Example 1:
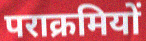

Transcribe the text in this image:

पराक्रमियों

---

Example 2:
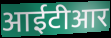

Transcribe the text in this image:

आईटीआर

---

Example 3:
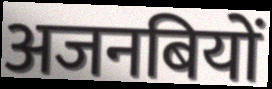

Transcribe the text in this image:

अजनबियों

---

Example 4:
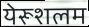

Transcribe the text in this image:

येरूशलम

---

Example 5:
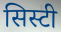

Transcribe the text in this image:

सिस्टी